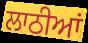
ਲਾਠੀਆਂ